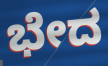
ಭೇದ